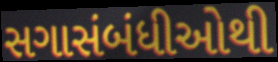
સગાસંબંધીઓથી